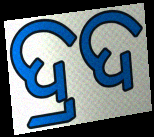
ଦ୍ରଦ